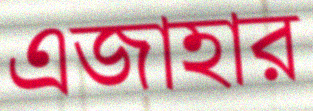
এজাহার